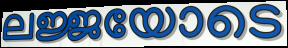
ലജ്ജയോടെ